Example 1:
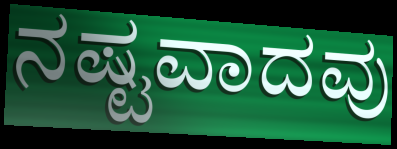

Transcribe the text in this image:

ನಷ್ಟವಾದವು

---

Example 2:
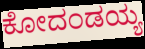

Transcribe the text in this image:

ಕೋದಂಡಯ್ಯ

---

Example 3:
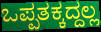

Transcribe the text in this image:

ಒಪ್ಪತಕ್ಕದ್ದಲ್ಲ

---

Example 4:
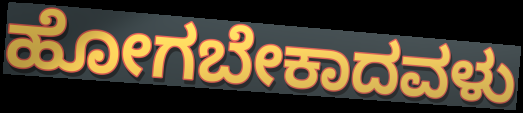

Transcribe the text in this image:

ಹೋಗಬೇಕಾದವಳು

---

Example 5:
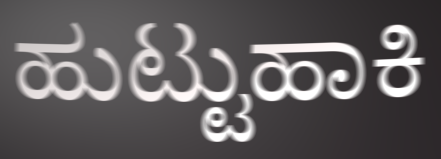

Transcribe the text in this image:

ಹುಟ್ಟುಹಾಕಿ